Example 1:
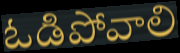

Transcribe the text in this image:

ఓడిపోవాలి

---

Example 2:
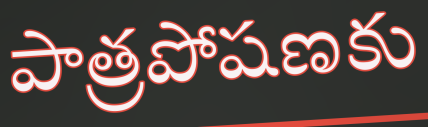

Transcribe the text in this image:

పాత్రపోషణకు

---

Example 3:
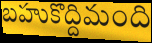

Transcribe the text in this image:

బహుకొద్దిమంది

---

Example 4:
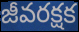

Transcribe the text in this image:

జీవరక్షక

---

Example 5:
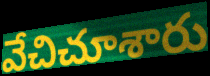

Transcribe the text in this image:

వేచిచూశారు